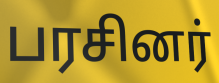
பரசினர்